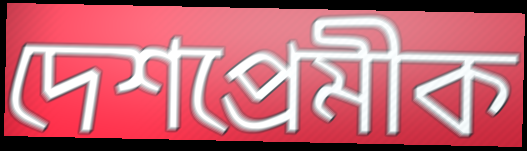
দেশপ্রেমীক